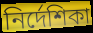
নিৰ্দেশিকা